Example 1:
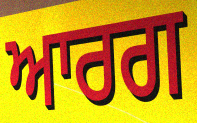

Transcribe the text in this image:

ਆਰਗ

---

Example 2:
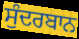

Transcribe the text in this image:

ਸੁੰਦਰਬਾਨ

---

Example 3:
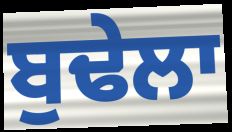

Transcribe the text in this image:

ਬੁਢੇਲਾ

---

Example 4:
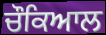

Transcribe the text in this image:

ਚੌਕਿਆਲ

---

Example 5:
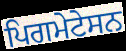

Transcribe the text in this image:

ਪਿਗਮੇਟੇਸਨ